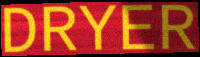
DRYER